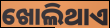
ଖୋଲିଥାଏ